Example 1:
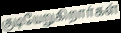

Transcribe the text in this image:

குடியேறுகிறார்கள்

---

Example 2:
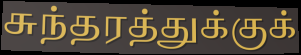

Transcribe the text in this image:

சுந்தரத்துக்குக்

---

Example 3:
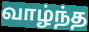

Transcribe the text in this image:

வாழ்ந்த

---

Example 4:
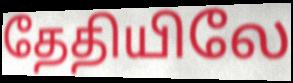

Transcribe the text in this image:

தேதியிலே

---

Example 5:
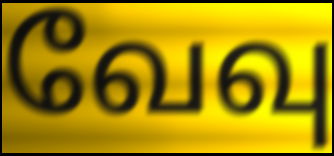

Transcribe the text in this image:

வேவு